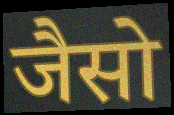
जैसो